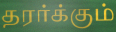
தரர்க்கும்